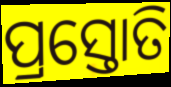
ପ୍ରସ୍ତୋତି